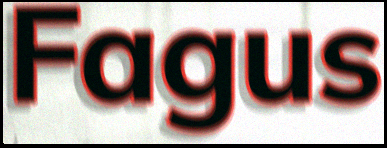
Fagus